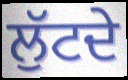
ਲੁੱਟਦੇ